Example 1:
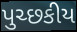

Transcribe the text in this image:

પુચ્છકીય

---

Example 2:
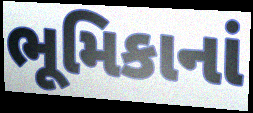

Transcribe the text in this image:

ભૂમિકાનાં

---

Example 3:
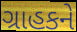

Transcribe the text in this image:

ગ્રાહકને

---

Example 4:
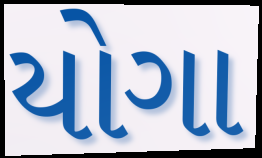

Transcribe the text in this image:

યોગા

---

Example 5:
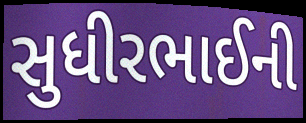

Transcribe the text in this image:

સુધીરભાઈની